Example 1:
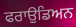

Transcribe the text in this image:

ਫਰਾਉਡਿਅਨ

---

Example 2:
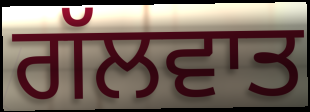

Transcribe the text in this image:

ਗੱਲਵਾਤ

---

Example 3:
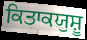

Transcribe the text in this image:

ਕਿਤਾਕਯੁਸ਼ੂ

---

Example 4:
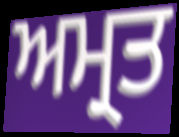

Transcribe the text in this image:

ਅਮ੍ਰਤ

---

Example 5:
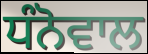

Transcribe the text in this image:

ਧੰਨੋਵਾਲ